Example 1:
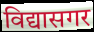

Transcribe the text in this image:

विद्यासगर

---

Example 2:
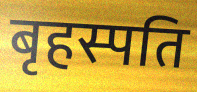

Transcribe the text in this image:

बृहस्पति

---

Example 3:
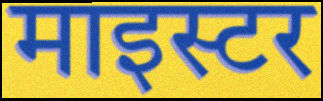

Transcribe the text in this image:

माइस्टर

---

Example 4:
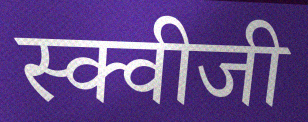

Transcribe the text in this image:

स्क्वीजी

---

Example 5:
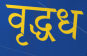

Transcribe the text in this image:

वृद्धध